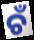
ଚଁ